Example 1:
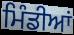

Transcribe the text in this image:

ਮਿੰਡੀਆਂ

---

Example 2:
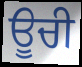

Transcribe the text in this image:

ਊਚੀ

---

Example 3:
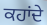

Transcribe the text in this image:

ਕਹਾਂਦੇ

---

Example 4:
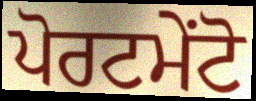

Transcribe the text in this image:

ਪੋਰਟਮੇਂਟੋ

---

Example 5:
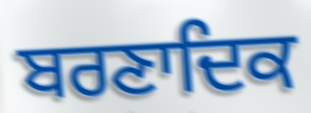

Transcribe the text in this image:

ਬਰਣਾਦਿਕ